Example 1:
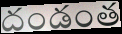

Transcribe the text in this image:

దండంత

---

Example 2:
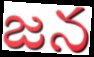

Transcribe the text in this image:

జన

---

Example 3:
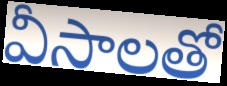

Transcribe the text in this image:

వీసాలతో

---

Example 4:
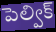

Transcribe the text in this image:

పెల్విక్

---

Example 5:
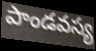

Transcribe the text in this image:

పాండవస్య